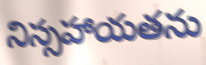
నిస్సహాయతను